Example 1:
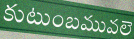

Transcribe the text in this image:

కుటుంబమువలె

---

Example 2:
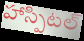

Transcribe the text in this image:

హాస్పిటల్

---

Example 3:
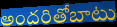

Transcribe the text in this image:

అందరితోబాటు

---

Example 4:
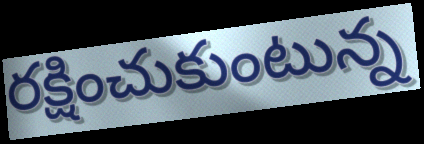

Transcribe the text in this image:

రక్షించుకుంటున్న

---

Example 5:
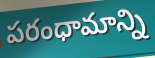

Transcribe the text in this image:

పరంధామాన్ని